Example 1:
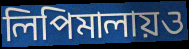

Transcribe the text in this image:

লিপিমালায়ও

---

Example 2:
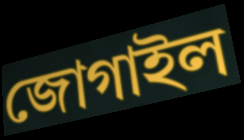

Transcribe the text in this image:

জোগাইল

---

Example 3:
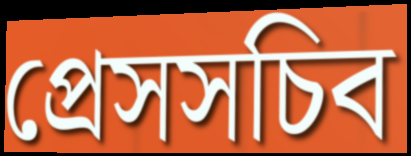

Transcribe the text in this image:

প্রেসসচিব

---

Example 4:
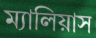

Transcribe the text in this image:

ম্যালিয়াস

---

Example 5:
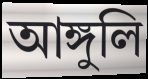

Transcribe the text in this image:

আঙ্গুলি